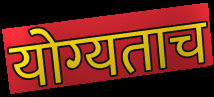
योग्यताच